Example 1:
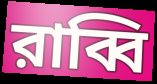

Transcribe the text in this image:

রাব্বি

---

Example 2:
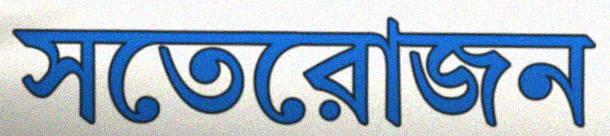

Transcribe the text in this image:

সতেরোজন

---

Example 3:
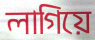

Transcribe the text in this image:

লাগিয়ে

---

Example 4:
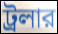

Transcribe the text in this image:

ট্রলার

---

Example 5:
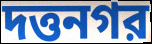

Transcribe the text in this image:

দত্তনগর